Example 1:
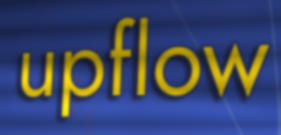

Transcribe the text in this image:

upflow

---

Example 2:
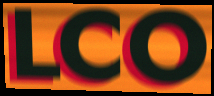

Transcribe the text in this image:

LCO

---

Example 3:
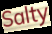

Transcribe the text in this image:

Salty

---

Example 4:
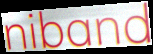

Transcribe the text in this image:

niband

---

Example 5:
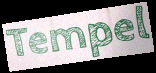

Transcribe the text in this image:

Tempel